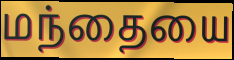
மந்தையை